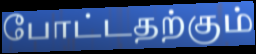
போட்டதற்கும்